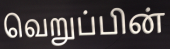
வெறுப்பின்